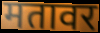
मतावर